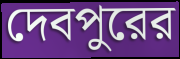
দেবপুরের